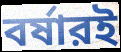
বর্ষারই